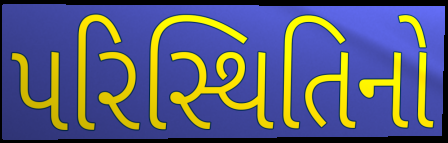
પરિસ્થિતિનો